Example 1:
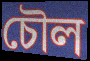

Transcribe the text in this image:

চৌল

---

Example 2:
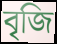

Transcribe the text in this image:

বৃজি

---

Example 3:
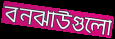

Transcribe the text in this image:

বনঝাউগুলো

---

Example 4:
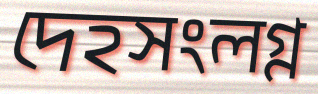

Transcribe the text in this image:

দেহসংলগ্ন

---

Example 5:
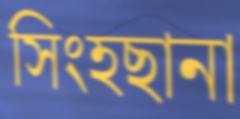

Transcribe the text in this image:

সিংহছানা